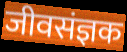
जीवसंज्ञक